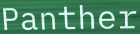
Panther